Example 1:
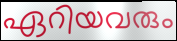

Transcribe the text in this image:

ഏറിയവരും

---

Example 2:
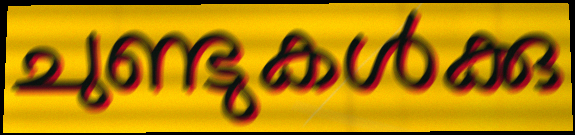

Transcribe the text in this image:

ചുണ്ടുകൾക്കു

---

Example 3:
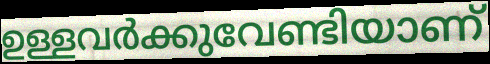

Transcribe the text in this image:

ഉള്ളവർക്കുവേണ്ടിയാണ്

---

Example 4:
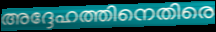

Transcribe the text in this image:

അദ്ദേഹത്തിനെതിരെ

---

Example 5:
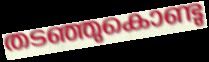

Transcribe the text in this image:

തടഞ്ഞുകൊണ്ടു